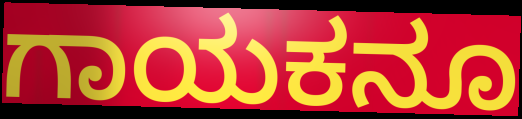
ಗಾಯಕನೂ